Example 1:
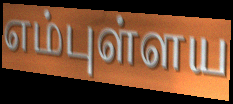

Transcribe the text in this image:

எம்புள்ளய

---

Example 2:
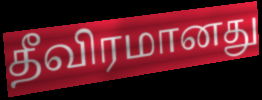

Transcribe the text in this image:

தீவிரமானது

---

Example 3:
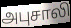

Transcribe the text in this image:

அபுசாலி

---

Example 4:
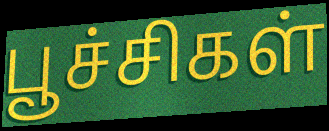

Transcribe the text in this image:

பூச்சிகள்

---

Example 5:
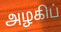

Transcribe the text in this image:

அழகிப்